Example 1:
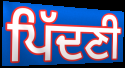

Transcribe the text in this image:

ਪਿੱਦਣੀ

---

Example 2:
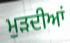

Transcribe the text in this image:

ਮੁੜਦੀਆਂ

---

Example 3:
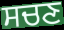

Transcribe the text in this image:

ਸਚਣ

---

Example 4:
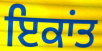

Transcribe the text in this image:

ਇਕਾਂਤ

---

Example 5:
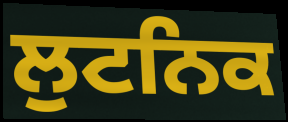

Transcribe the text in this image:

ਲੁਟਨਿਕ